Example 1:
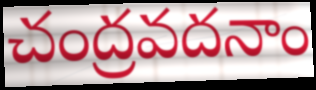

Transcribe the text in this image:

చంద్రవదనాం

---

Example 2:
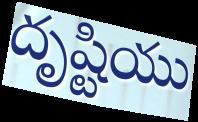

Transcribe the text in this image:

దృష్టియు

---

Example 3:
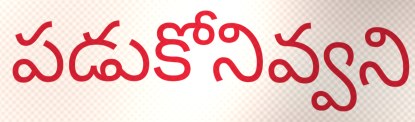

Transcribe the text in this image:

పడుకోనివ్వని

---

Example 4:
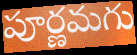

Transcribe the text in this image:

పూర్ణమగు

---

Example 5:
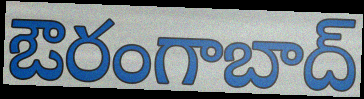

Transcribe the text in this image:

ఔరంగాబాద్